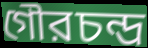
গৌরচন্দ্র